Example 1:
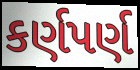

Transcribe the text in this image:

કર્ણપર્ણ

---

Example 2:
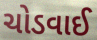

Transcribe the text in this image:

ચોડવાઈ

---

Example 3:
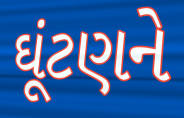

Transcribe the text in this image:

ઘૂંટણને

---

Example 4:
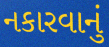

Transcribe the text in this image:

નકારવાનું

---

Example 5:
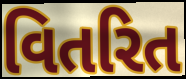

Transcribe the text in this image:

વિતરિત